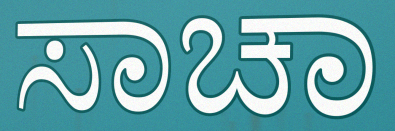
ಸಾಚಾ